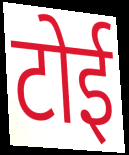
टोई